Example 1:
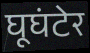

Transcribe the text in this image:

घूघंटेर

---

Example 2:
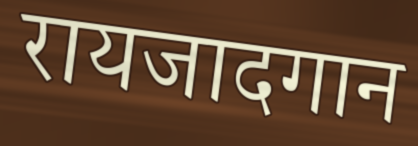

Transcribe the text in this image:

रायजादगान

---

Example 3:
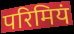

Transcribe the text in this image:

परिमियं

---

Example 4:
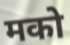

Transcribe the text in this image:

मको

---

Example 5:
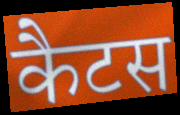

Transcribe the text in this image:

कैटस